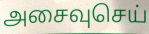
அசைவுசெய்